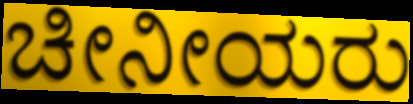
ಚೀನೀಯರು